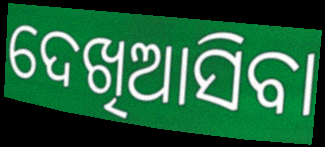
ଦେଖିଆସିବା